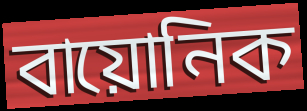
বায়োনিক